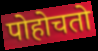
पोहोचतो